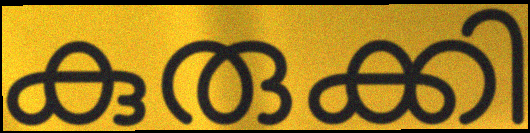
കുരുക്കി